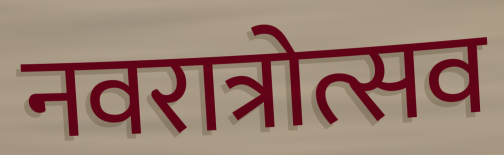
नवरात्रोत्सव